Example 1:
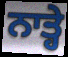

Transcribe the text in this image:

ਨਾਤ੍ਹੇ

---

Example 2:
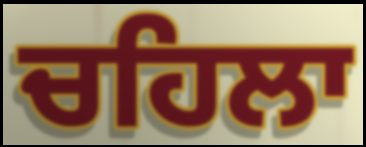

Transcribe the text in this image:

ਚਹਿਲਾ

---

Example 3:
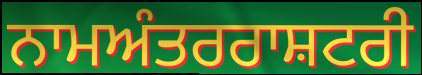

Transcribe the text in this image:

ਨਾਮਅੰਤਰਰਾਸ਼ਟਰੀ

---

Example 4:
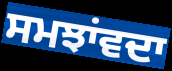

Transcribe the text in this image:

ਸਮਝਾਂਵਦਾ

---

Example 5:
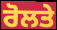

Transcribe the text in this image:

ਰੋਲਤੇ